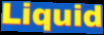
Liquid